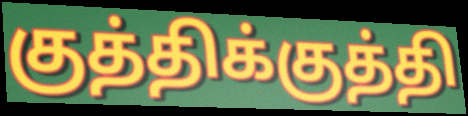
குத்திக்குத்தி